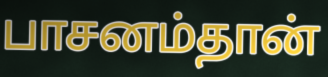
பாசனம்தான்